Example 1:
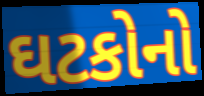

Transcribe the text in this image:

ઘટકોનો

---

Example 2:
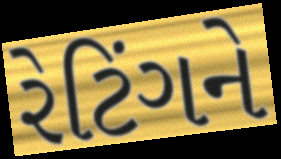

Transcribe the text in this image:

રેટિંગને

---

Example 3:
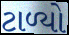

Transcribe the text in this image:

ટાળ્યો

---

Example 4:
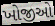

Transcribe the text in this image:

ખોજીઓ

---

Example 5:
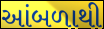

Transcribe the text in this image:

આંબળાથી